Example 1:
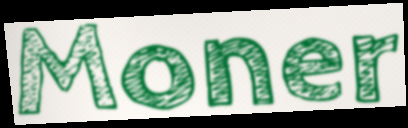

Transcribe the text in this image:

Moner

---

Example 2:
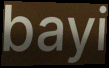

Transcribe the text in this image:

bayi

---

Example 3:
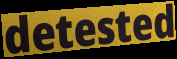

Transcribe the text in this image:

detested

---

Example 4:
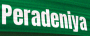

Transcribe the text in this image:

Peradeniya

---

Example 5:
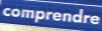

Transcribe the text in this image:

comprendre